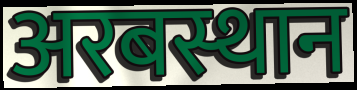
अरबस्थान